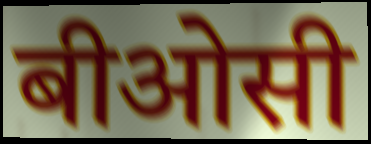
बीओसी